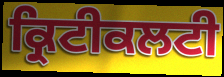
ਕ੍ਰਿਟੀਕਲਟੀ